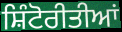
ਸ਼ਿੰਟੋਰੀਤੀਆਂ